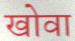
खोवा